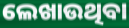
ଲେଖାଉଥିବା